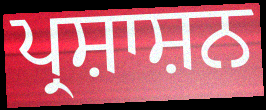
ਪ੍ਰਸ਼ਾਸ਼ਨ